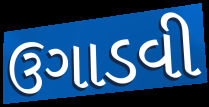
ઉગાડવી